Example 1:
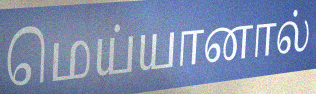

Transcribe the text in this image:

மெய்யானால்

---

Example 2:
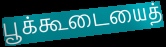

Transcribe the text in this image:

பூக்கூடையைத்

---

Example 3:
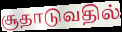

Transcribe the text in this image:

சூதாடுவதில்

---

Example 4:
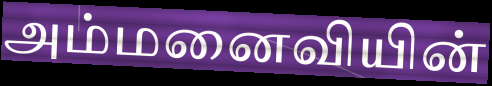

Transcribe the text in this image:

அம்மனைவியின்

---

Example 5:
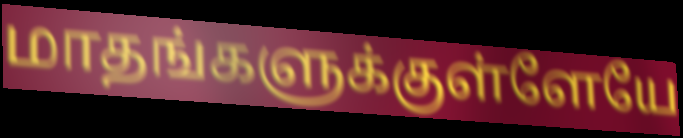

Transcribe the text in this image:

மாதங்களுக்குள்ளேயே